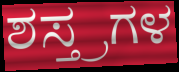
ಶಸ್ತ್ರಗಳ